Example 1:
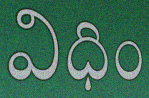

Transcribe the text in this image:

విధిం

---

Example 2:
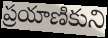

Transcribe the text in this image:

ప్రయాణికుని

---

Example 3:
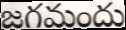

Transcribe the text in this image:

జగమందు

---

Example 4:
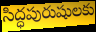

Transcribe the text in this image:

సిద్ధపురుషులకు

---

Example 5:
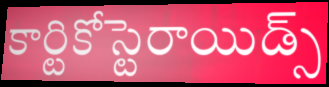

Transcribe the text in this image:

కార్టికోస్టెరాయిడ్స్